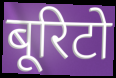
बूरिटो